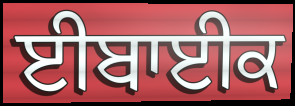
ਈਬਾਈਕ